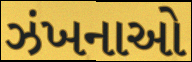
ઝંખનાઓ